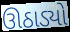
ઊઠાડ્યો